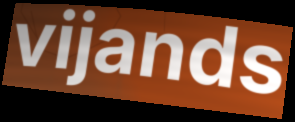
vijands